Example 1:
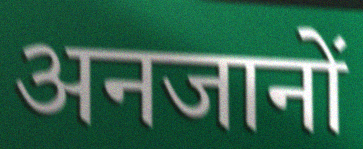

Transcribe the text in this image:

अनजानों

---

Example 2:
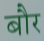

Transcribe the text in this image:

बौर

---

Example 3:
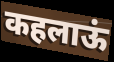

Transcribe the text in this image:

कहलाऊं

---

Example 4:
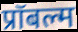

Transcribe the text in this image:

प्रॉबल्म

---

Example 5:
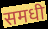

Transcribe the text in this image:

समधी